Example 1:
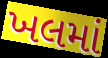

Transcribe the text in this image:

ખલમાં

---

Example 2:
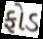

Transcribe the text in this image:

ફોડ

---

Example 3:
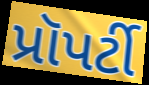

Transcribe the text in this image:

પ્રૉપર્ટી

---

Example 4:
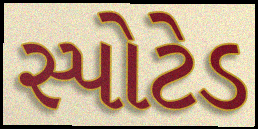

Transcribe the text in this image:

સ્પોટેડ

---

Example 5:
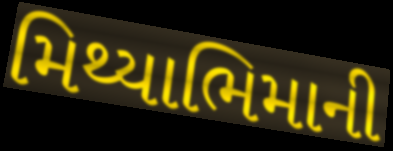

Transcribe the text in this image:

મિથ્યાભિમાની